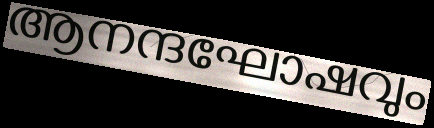
ആനന്ദഘോഷവും